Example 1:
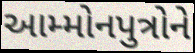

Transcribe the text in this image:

આમ્મોનપુત્રોને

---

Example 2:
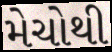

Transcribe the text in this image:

મેચોથી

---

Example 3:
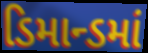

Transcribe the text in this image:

ડિમાન્ડમાં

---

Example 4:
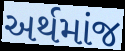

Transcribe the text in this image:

અર્થમાંજ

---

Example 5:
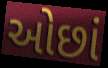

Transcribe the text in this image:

ઓછાં